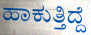
ಹಾಕುತ್ತಿದ್ದೆ